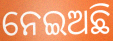
ନେଇଅଛି